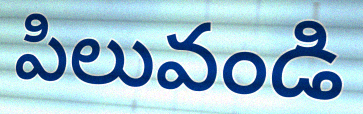
పిలువండి